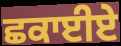
ਛਕਾਈਏ